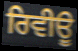
ਰਿਵੀਊ